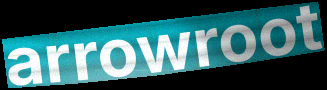
arrowroot